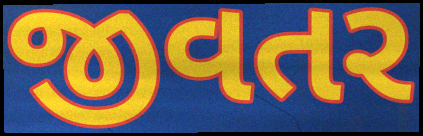
જીવતર